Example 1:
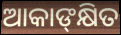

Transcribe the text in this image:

ଆକାଙ୍‍କ୍ଷିତ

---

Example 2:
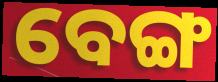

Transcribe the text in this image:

ବେଙ୍ଗ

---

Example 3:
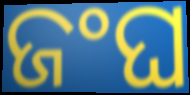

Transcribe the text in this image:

ଜଂଘ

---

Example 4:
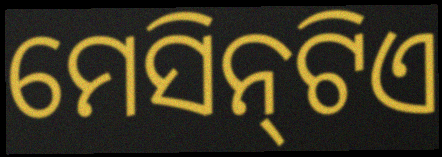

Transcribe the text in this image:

ମେସିନ୍‌ଟିଏ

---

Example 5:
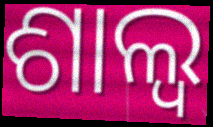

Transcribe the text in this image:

ଶାଲ୍ୱ